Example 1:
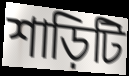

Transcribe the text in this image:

শাড়িটি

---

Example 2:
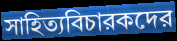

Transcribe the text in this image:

সাহিত্যবিচারকদের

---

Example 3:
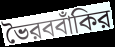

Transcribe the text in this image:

ভৈরববাঁকির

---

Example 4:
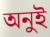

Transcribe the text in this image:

অনুই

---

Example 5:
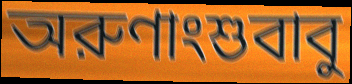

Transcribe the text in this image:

অরুণাংশুবাবু